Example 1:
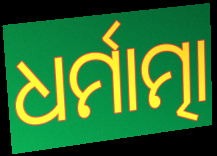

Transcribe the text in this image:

ଧର୍ମାତ୍ମା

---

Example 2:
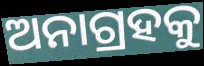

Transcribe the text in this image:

ଅନାଗ୍ରହକୁ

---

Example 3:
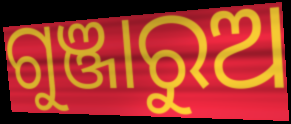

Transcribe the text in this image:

ଗୁଞ୍ଜାରୁଅ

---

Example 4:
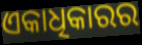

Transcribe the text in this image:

ଏକାଧିକାରର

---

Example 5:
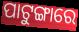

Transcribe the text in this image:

ପାଟୁଙ୍ଗାରେ